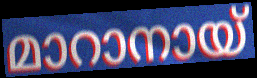
മാറാനായ്